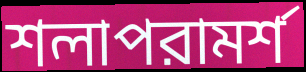
শলাপরামর্শ